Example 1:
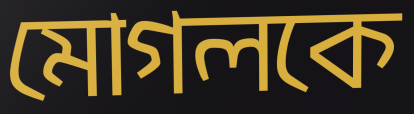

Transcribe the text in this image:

মোগলকে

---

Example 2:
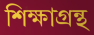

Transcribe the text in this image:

শিক্ষাগ্রন্থ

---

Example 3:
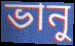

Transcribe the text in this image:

ভানু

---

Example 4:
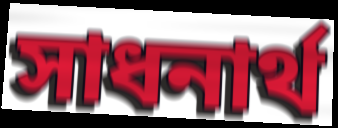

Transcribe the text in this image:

সাধনার্থ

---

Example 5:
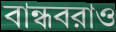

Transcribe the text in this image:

বান্ধবরাও